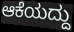
ಆಕೆಯದ್ದು